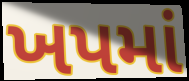
ખપમાં